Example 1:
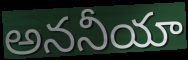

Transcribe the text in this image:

అననీయా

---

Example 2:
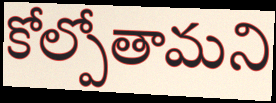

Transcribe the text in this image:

కోల్పోతామని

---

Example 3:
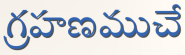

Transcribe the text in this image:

గ్రహణముచే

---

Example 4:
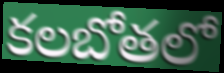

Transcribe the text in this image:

కలబోతలో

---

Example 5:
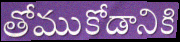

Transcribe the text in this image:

తోముకోడానికి